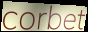
corbet